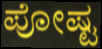
ಪೋಷ್ಟ